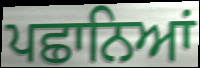
ਪਛਾਨਿਆਂ